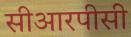
सीआरपीसी